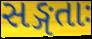
સઙ્ગતાઃ